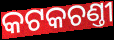
କଟକଚଣ୍ତୀ